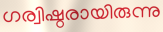
ഗര്വിഷ്ഠരായിരുന്നു